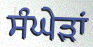
ਸੰਘੇੜਾਂ